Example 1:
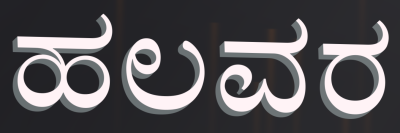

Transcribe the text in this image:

ಹಲವರ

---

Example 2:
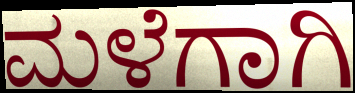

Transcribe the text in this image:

ಮಳೆಗಾಗಿ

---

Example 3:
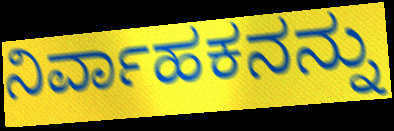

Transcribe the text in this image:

ನಿರ್ವಾಹಕನನ್ನು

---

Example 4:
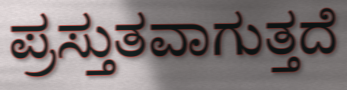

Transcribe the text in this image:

ಪ್ರಸ್ತುತವಾಗುತ್ತದೆ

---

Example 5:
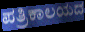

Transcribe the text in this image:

ಪತ್ರಿಕಾಲಯದ